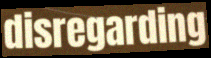
disregarding